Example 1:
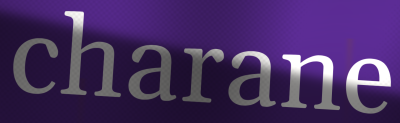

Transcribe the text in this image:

charane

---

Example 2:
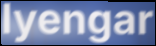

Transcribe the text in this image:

Iyengar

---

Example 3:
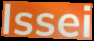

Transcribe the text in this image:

Issei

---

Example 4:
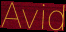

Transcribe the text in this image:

Avid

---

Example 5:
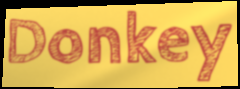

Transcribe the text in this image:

Donkey